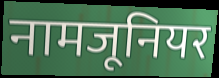
नामजूनियर